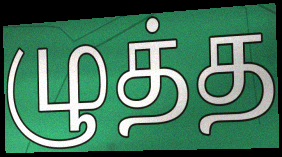
ழுத்த